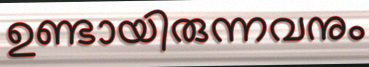
ഉണ്ടായിരുന്നവനും